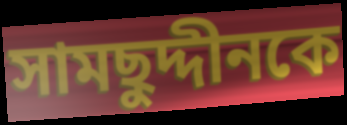
সামছুদ্দীনকে